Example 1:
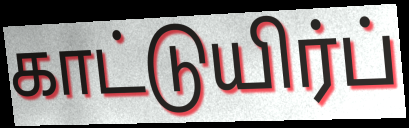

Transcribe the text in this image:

காட்டுயிர்ப்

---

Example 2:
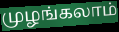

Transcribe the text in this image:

முழங்கலாம்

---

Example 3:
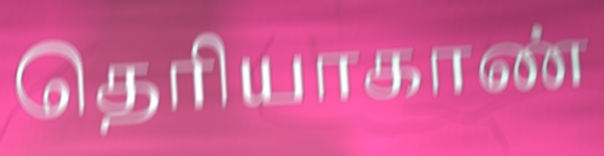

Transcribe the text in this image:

தெரியாகாண்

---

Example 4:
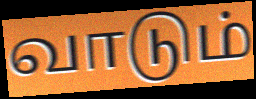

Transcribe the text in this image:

வாடும்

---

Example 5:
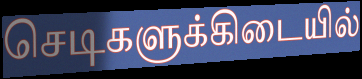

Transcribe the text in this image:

செடிகளுக்கிடையில்